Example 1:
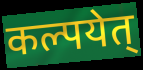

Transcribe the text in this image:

कल्पयेत्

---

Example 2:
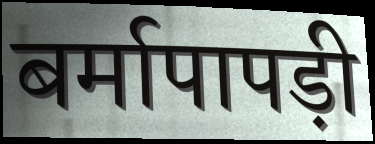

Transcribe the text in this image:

बर्मापापड़ी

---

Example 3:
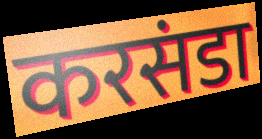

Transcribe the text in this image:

करसंडा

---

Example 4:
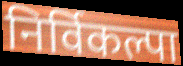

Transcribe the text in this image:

निर्विकल्पा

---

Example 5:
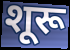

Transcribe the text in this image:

शूरू